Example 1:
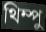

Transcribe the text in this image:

থিম্পু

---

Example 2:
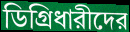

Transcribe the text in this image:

ডিগ্রিধারীদের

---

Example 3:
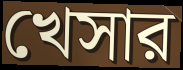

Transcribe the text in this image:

খেসার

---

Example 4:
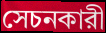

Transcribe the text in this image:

সেচনকারী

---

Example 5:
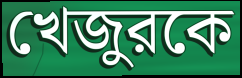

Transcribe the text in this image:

খেজুরকে